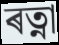
ৰত্না